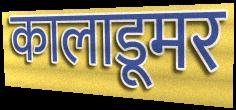
कालाडूमर